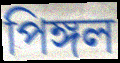
পিঙ্গল